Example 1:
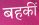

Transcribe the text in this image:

बहकीं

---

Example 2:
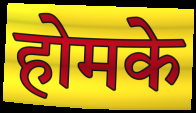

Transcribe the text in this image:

होमके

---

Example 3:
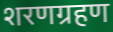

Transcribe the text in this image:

शरणग्रहण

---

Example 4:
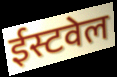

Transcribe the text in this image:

ईस्टवेल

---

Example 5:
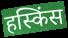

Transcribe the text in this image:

हस्किंस